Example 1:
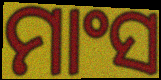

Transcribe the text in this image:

ମାଂସ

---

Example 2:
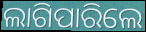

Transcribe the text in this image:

ଲାଗିପାରିଲେ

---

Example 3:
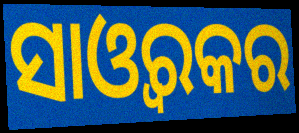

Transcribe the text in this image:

ସାଓ୍ୱରକର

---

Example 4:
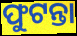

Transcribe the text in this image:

ଫୁଟନ୍ତା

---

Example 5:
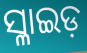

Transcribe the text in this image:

ସ୍ଳାଇଡ଼